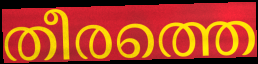
തീരത്തെ